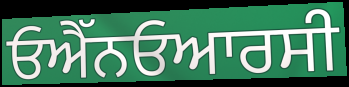
ਓਐੱਨਓਆਰਸੀ